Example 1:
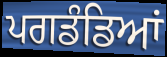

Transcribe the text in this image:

ਪਗਡੰਡਿਆਂ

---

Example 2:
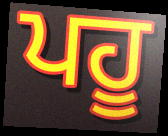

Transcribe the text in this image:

ਪਹੂ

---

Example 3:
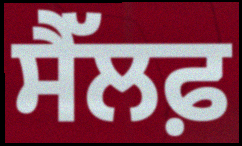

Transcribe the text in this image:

ਸੈੱਲਫ਼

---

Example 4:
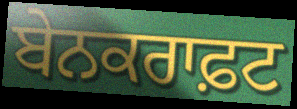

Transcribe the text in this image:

ਬੇਨਕਰਾਫ਼ਟ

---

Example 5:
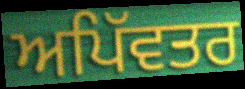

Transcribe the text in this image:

ਅਪਿੱਵਤਰ